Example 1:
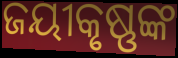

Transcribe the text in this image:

ଜୟୀକୃଷ୍ଣଙ୍କ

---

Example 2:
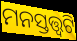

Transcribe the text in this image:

ମନସ୍ତତ୍ତ୍ୱଟି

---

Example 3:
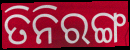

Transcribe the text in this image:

ତିନିରଙ୍ଗ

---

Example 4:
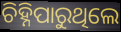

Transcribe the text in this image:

ଚିହ୍ନିପାରୁଥିଲେ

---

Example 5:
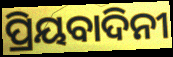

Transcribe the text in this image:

ପ୍ରିୟବାଦିନୀ